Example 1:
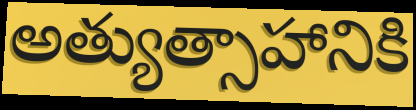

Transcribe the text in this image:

అత్యుత్సాహానికి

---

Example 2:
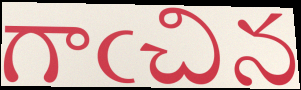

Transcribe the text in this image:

గాఁచిన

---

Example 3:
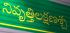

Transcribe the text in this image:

నివృత్తిలక్షణశ్చ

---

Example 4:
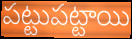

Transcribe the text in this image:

పట్టుపట్టాయి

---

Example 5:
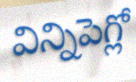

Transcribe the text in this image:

విన్నిపెగ్లో